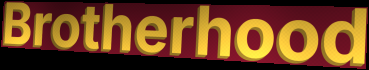
Brotherhood